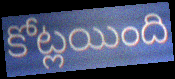
కోట్లయింది